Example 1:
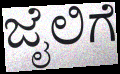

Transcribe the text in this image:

ಜೈಲಿಗೆ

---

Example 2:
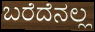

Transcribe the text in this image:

ಬರೆದೆನಲ್ಲ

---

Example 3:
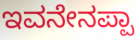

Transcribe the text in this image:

ಇವನೇನಪ್ಪಾ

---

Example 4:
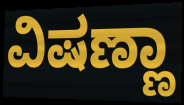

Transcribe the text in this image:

ವಿಷಣ್ಣಾ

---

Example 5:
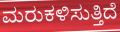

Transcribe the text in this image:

ಮರುಕಳಿಸುತ್ತಿದೆ